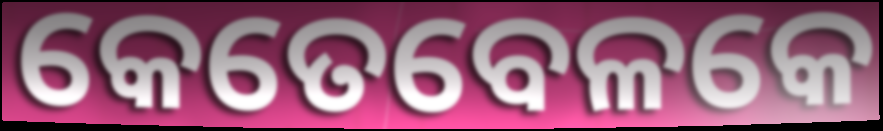
କେତେବେଳକେ